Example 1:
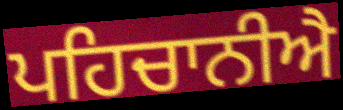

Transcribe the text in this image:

ਪਹਿਚਾਨੀਐ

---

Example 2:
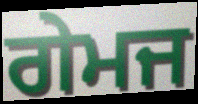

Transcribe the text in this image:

ਗੇਮਜ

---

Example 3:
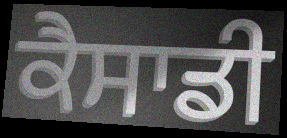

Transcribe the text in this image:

ਕੈਸਾਡੀ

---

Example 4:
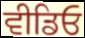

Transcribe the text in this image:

ਵੀਡਿਓ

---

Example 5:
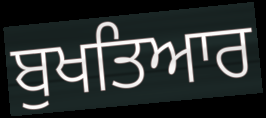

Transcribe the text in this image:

ਬੁਖਤਿਆਰ